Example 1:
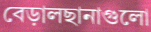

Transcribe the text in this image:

বেড়ালছানাগুলো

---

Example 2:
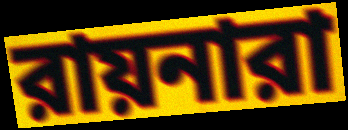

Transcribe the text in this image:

রায়নারা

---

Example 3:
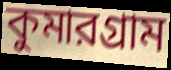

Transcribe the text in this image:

কুমারগ্রাম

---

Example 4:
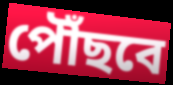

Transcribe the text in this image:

পৌঁছবে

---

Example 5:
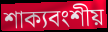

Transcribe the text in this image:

শাক্যবংশীয়